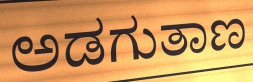
ಅಡಗುತಾಣ